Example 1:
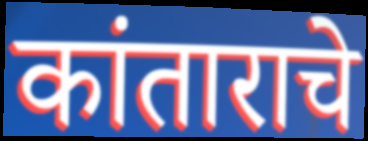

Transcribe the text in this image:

कांताराचे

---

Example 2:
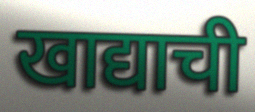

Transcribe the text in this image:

खाद्याची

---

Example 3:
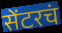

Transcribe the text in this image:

सेंटरचं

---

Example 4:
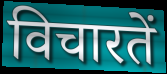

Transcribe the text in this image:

विचारतें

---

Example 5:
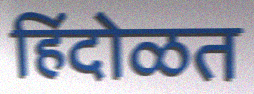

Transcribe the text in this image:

हिंदोळत